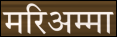
मरिअम्मा